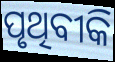
ପୃଥିବୀକି